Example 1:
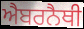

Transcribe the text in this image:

ਐਬਰਨੈਥੀ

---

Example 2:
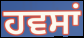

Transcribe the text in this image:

ਹਵਸਾਂ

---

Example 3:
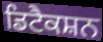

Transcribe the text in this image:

ਡਿਟੈਕਸ਼ਨ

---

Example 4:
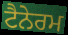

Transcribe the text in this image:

ਟੈਨੇਰਮ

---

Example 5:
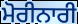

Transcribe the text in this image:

ਮੋਰੀਨਾਰੀ